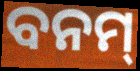
ବନମ୍